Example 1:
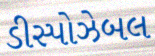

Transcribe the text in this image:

ડીસ્પોઝેબલ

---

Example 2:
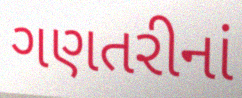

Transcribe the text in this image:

ગણતરીનાં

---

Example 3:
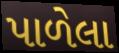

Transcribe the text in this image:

પાળેલા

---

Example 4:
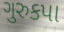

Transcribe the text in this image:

ગુરુકપા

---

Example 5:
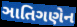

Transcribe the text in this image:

ઞાતિગણેન